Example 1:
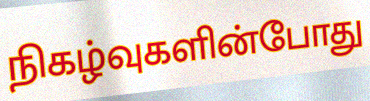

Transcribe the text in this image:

நிகழ்வுகளின்போது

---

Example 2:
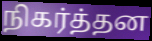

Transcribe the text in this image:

நிகர்த்தன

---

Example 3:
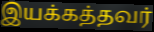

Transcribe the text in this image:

இயக்கத்தவர்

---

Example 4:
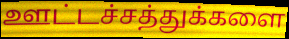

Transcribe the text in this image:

ஊட்டச்சத்துக்களை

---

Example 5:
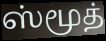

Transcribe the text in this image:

ஸ்மூத்